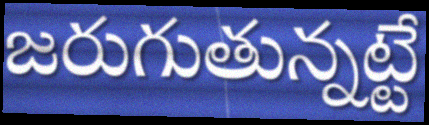
జరుగుతున్నట్టే